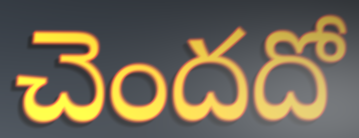
చెందదో